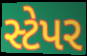
સ્ટેપર